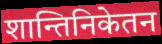
शान्तिनिकेतन